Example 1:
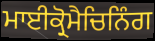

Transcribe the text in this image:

ਮਾਈਕ੍ਰੋਮੈਚਿਨਿੰਗ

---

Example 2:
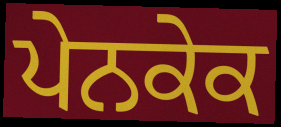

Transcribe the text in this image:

ਪੇਨਕੇਕ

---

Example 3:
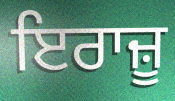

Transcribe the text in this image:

ਇਰਾਜ਼ੂ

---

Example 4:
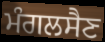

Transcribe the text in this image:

ਮੰਗਲਸੈਣ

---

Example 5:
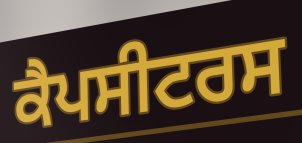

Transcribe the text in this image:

ਕੈਪਸੀਟਰਸ